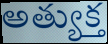
అత్యుక్త